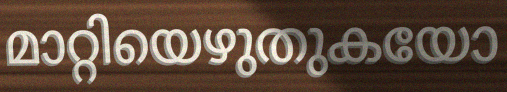
മാറ്റിയെഴുതുകയോ